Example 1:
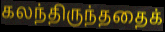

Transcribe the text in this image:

கலந்திருந்ததைக்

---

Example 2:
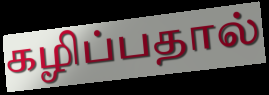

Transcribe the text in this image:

கழிப்பதால்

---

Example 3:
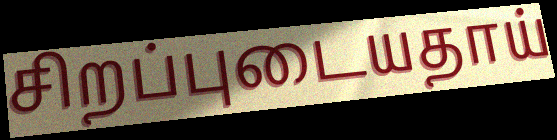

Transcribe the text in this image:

சிறப்புடையதாய்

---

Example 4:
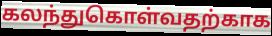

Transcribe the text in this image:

கலந்துகொள்வதற்காக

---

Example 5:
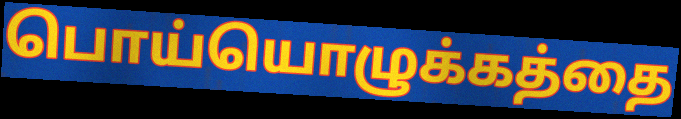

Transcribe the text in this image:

பொய்யொழுக்கத்தை